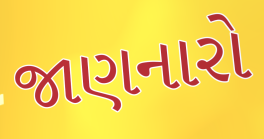
જાણનારો